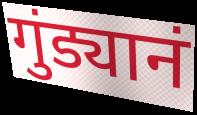
गुंड्यानं